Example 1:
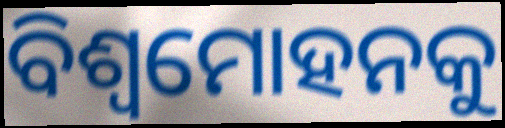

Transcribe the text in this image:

ବିଶ୍ଵମୋହନକୁ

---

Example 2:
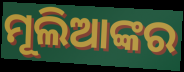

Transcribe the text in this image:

ମୂଲିଆଙ୍କର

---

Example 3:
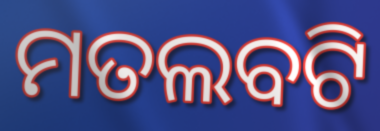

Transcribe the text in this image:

ମତଲବଟି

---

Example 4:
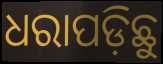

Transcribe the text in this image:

ଧରାପଡ଼ିଛୁ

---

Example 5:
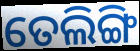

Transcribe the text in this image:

ତେଲିଙ୍ଗି